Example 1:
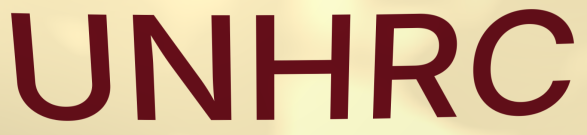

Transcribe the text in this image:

UNHRC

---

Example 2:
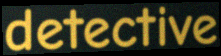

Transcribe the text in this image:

detective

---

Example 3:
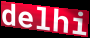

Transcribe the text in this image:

delhi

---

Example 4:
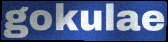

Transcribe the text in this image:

gokulae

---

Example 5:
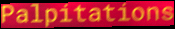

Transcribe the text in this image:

Palpitations